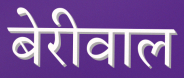
बेरीवाल